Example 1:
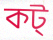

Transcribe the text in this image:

কট্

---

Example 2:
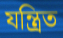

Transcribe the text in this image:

যন্ত্রিত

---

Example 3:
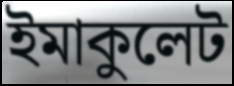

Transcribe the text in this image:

ইমাকুলেট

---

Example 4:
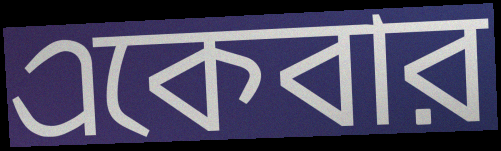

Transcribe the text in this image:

একেবার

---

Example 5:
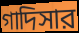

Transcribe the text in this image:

গাদিসার